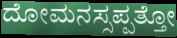
ದೋಮನಸ್ಸಪ್ಪತ್ತೋ